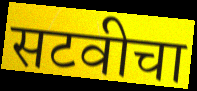
सटवीचा